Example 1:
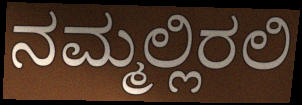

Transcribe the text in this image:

ನಮ್ಮಲ್ಲಿರಲಿ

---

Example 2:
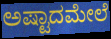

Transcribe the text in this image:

ಅಷ್ಟಾದಮೇಲೆ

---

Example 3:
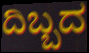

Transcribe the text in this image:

ದಿಬ್ಬದ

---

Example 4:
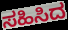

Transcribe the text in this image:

ಸಹಿಸಿದ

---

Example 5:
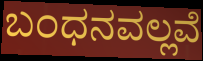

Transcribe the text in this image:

ಬಂಧನವಲ್ಲವೆ